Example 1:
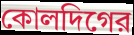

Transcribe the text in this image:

কোলদিগের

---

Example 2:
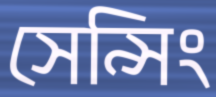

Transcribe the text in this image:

সেন্সিং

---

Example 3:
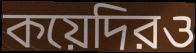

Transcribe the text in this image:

কয়েদিরও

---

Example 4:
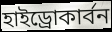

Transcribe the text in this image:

হাইড্রোকার্বন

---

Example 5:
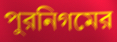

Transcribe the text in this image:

পুরনিগমের